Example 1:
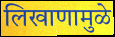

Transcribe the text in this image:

लिखाणामुळे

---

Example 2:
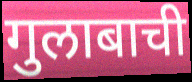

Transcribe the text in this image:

गुलाबाची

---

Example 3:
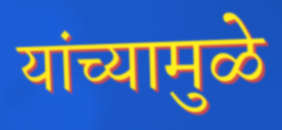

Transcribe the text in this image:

यांच्यामुळे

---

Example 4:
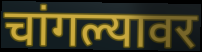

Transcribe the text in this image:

चांगल्यावर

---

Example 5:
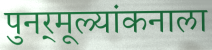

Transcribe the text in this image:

पुनर्मूल्यांकनाला